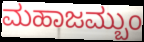
ಮಹಾಜಮ್ಬುಂ